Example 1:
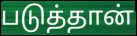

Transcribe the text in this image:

படுத்தான்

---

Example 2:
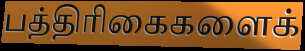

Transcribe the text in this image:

பத்திரிகைகளைக்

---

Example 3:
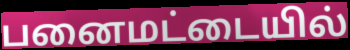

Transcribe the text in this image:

பனைமட்டையில்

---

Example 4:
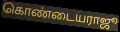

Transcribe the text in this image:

கொண்டையராஜூ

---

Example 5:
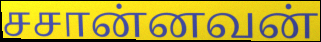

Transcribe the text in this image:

சசான்னவன்